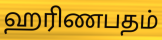
ஹரிணபதம்